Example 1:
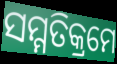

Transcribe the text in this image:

ସମ୍ମତିକ୍ରମେ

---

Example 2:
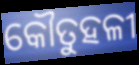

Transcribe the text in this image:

କୌତୁହଳୀ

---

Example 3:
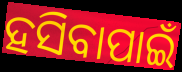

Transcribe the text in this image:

ହସିବାପାଇଁ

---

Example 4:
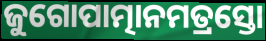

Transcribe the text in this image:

ଜୁଗୋପାତ୍ମାନମତ୍ରସ୍ତୋ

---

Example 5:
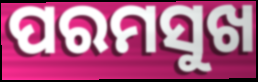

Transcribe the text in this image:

ପରମସୁଖ